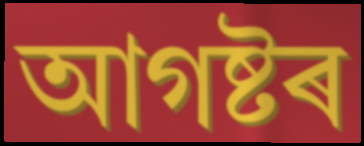
আগষ্টৰ